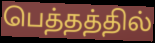
பெத்தத்தில்